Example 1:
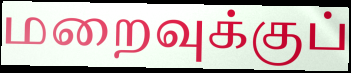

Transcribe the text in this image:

மறைவுக்குப்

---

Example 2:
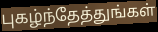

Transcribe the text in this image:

புகழ்ந்தேத்துங்கள்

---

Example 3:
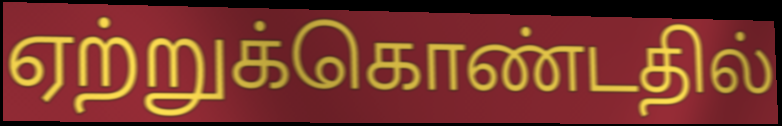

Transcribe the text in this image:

ஏற்றுக்கொண்டதில்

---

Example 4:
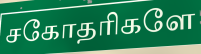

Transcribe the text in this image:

சகோதரிகளே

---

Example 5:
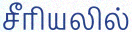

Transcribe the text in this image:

சீரியலில்